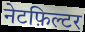
नेटफ़िल्टर